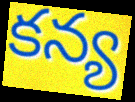
కన్య